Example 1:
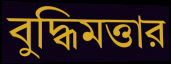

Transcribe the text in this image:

বুদ্ধিমত্তার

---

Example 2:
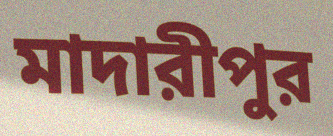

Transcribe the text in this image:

মাদারীপুর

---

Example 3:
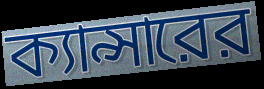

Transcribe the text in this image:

ক্যান্সারের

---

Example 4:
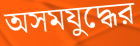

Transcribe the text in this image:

অসমযুদ্ধের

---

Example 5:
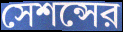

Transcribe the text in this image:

সেশন্সের